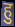
हु